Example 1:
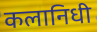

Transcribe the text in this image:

कलानिधी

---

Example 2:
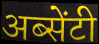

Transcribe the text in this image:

अब्सेंटी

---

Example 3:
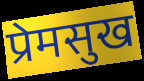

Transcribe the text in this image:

प्रेमसुख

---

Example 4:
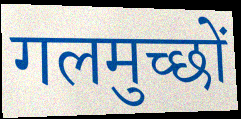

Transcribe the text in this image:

गलमुच्छों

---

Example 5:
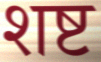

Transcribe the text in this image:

शष्ट